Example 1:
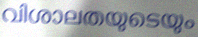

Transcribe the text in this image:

വിശാലതയുടെയും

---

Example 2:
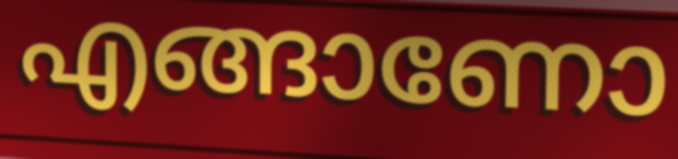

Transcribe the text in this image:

എങ്ങാണോ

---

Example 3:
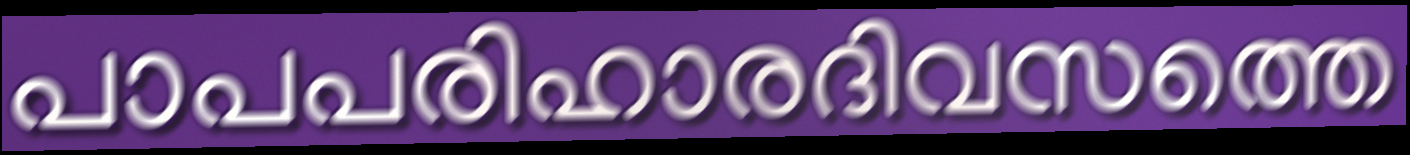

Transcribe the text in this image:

പാപപരിഹാരദിവസത്തെ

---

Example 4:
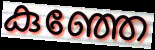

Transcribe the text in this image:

കുഞ്ഞേ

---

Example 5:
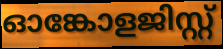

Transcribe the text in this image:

ഓങ്കോളജിസ്റ്റ്